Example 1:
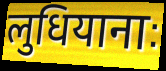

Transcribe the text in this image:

लुधियानाः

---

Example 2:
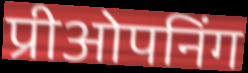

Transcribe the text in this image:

प्रीओपनिंग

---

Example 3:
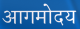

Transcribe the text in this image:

आगमोदय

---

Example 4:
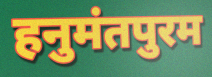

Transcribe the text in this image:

हनुमंतपुरम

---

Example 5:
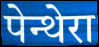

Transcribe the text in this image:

पेन्थेरा